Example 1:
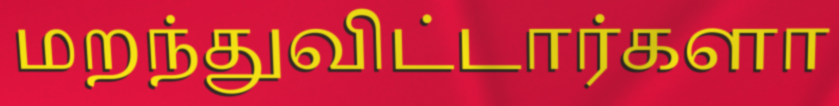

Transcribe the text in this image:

மறந்துவிட்டார்களா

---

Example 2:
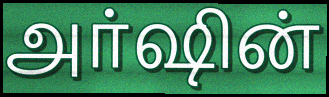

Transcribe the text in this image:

அர்ஷின்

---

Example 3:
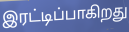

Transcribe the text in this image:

இரட்டிப்பாகிறது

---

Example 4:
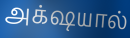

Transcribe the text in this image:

அக்‌ஷயால்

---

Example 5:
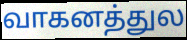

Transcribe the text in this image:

வாகனத்துல